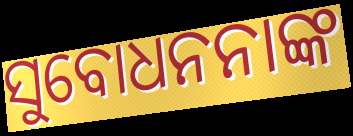
ସୁବୋଧନନାଙ୍କ